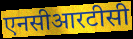
एनसीआरटीसी